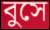
বুসে